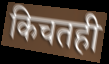
किचतही